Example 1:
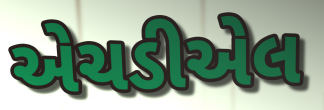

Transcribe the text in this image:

એચડીએલ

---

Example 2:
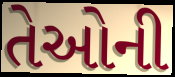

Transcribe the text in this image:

તેઓની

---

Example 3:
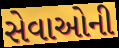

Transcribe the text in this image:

સેવાઓની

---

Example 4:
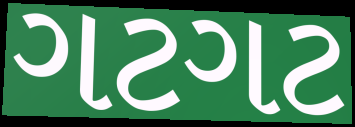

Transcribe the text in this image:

ગટગટ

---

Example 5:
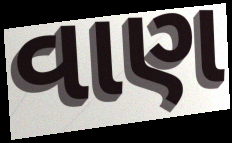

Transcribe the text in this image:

વાણ